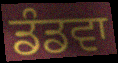
ਡੰਡਵਾ